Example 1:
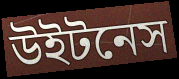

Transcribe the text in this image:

উইটনেস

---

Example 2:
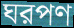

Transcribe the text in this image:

ঘরপণ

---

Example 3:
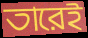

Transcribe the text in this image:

তারেই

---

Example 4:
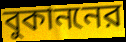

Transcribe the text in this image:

বুকাননের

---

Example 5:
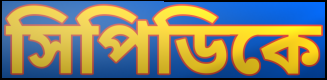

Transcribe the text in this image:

সিপিডিকে